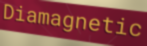
Diamagnetic